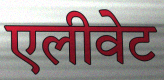
एलीवेट